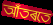
আঁতৰতে